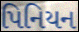
પિનિયન